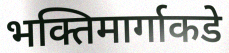
भक्तिमार्गाकडे